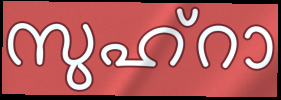
സുഹ്റാ